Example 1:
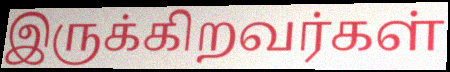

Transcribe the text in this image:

இருக்கிறவர்கள்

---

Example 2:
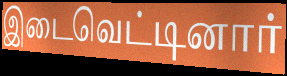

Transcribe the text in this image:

இடைவெட்டினார்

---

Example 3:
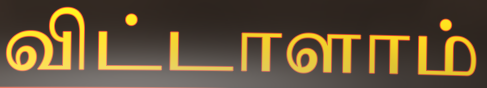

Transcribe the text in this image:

விட்டாளாம்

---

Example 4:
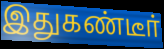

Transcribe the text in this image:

இதுகண்டீர்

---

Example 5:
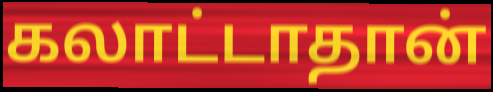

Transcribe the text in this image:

கலாட்டாதான்